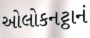
ઓલોકનટ્ઠાનં